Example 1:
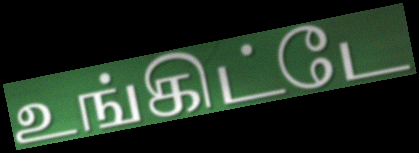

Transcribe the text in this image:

உங்கிட்டே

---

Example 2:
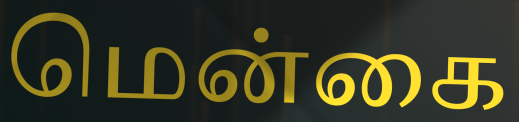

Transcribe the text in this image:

மென்கை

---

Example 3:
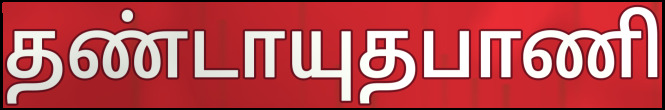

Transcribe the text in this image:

தண்டாயுதபாணி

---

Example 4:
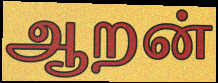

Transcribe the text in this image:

ஆறன்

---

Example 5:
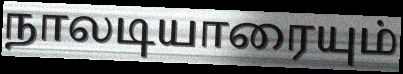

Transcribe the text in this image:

நாலடியாரையும்